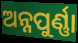
ଅନ୍ନପୁର୍ଣ୍ଣା